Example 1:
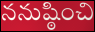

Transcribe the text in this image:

ననుష్ఠించి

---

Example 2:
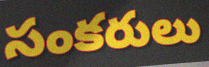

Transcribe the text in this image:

సంకరులు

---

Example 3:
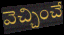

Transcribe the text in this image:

వెచ్చించే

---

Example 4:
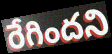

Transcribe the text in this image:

రేగిందని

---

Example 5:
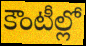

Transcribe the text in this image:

కౌంటీల్లో